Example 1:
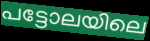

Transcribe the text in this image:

പട്ടോലയിലെ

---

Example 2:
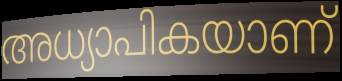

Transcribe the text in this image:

അധ്യാപികയാണ്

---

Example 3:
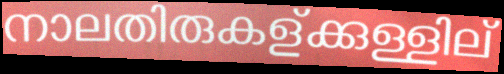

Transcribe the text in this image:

നാലതിരുകള്ക്കുള്ളില്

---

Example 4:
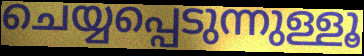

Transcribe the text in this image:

ചെയ്യപ്പെടുന്നുള്ളൂ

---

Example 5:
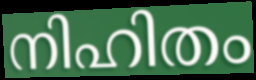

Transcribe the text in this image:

നിഹിതം